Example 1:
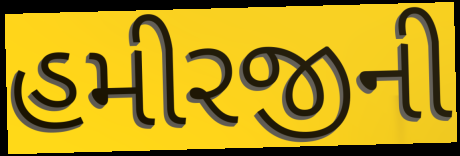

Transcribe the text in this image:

હમીરજીની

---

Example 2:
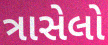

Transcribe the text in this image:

ત્રાસેલો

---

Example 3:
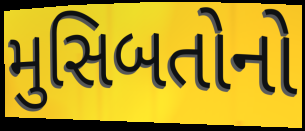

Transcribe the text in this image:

મુસિબતોનો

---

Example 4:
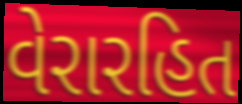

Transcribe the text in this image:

વેરારહિત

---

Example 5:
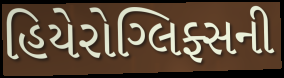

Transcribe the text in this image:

હિયેરોગ્લિફ્સની